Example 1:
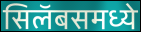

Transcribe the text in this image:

सिलॅबसमध्ये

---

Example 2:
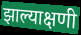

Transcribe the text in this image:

झाल्याक्षणी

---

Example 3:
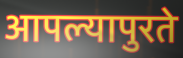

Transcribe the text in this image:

आपल्यापुरते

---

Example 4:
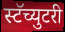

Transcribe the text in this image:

स्टॅच्युटरी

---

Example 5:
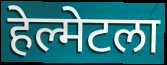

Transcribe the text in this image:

हेल्मेटला